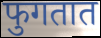
फुगतात